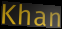
Khan